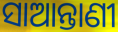
ସାଆନ୍ତାଣୀ